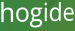
hogide